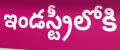
ఇండస్ట్రీలోకి